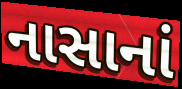
નાસાનાં